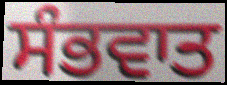
ਸੰਭਵਾਤ